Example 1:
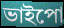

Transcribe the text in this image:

ভাইপো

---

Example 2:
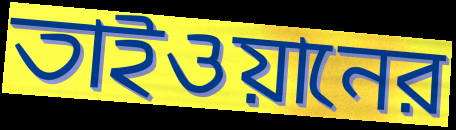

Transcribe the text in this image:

তাইওয়ানের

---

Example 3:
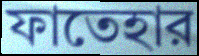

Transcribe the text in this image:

ফাতেহার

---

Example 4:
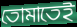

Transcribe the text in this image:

তোমাতেই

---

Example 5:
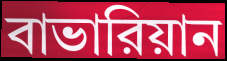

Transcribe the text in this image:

বাভারিয়ান